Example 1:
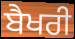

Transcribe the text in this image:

ਬੈਖਰੀ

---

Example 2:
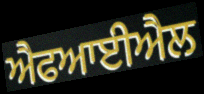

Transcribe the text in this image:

ਐਫਆਈਐਲ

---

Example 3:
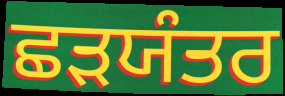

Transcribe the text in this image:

ਛੜਯੰਤਰ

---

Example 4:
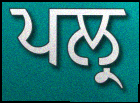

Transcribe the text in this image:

ਪਲ੍ਰ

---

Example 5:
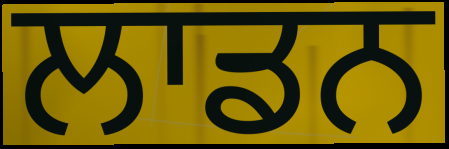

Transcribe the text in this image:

ਲਾਡਨ